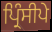
ਪ੍ਰਿੰਸੀਪੇ